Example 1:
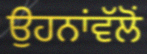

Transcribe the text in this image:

ਉਹਨਾਂਵੱਲੋਂ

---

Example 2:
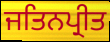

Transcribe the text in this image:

ਜਤਿਨਪ੍ਰੀਤ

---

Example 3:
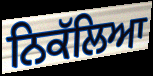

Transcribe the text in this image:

ਨਿਕੱਲਿਆ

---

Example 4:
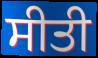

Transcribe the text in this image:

ਸੀਤੀ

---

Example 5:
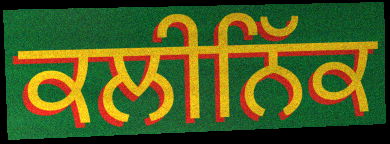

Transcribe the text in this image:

ਕਲੀਨਿੱਕ